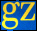
gz